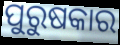
ପୁରୁଷକାର